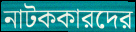
নাটককারদের